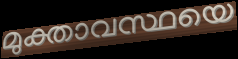
മുക്താവസ്ഥയെ